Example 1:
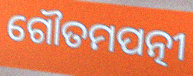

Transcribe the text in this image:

ଗୌତମପତ୍ନୀ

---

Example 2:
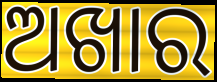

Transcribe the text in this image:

ଅଖାର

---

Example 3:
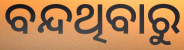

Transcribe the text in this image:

ବନ୍ଦଥିବାରୁ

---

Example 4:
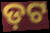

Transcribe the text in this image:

ଡ଼ଟ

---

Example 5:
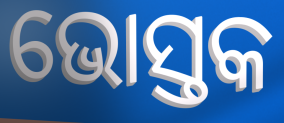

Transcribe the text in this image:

ଭୋସ୍ତକ